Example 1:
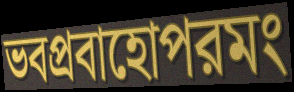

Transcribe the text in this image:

ভবপ্রবাহোপরমং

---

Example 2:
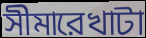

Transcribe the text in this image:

সীমারেখাটা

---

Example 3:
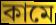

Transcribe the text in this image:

কামে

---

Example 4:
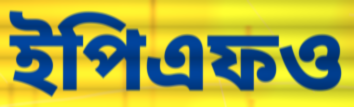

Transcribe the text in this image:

ইপিএফও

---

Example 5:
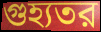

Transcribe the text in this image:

গুহ্যতর